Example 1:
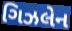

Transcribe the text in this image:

ગિઝલેન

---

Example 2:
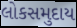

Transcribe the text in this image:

લોકસમુદાય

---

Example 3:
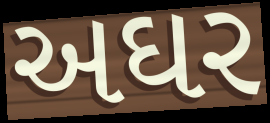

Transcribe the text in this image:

અઘર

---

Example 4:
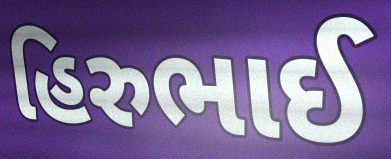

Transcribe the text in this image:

હિરુભાઈ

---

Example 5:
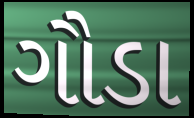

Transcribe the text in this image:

ગૌડા